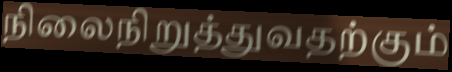
நிலைநிறுத்துவதற்கும்